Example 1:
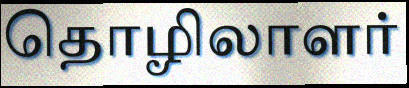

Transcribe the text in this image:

தொழிலாளர்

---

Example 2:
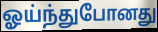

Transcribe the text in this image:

ஓய்ந்துபோனது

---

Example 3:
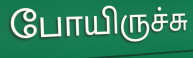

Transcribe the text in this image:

போயிருச்சு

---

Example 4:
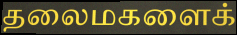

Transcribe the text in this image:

தலைமகளைக்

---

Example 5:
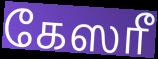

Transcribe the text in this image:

கேஸரீ